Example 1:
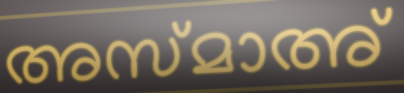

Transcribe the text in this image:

അസ്മാഅ്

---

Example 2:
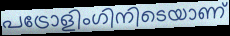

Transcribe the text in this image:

പട്രോളിംഗിനിടെയാണ്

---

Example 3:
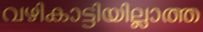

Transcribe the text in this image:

വഴികാട്ടിയില്ലാത്ത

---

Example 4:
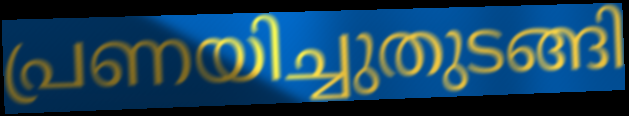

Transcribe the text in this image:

പ്രണയിച്ചുതുടങ്ങി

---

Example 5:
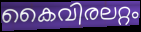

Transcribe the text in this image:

കൈവിരലറ്റം